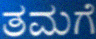
ತಮಗೆ